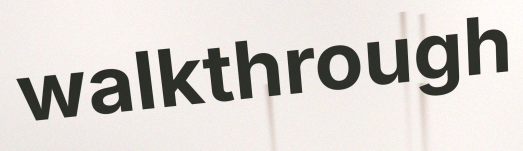
walkthrough